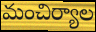
మంచిర్యాల